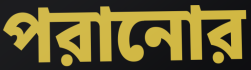
পরানোর